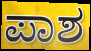
ಪಾಶ